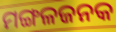
ମଙ୍ଗଳଜନକ